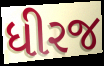
ધીરજ